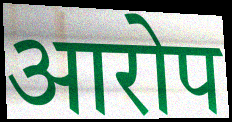
आरोप